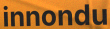
innondu